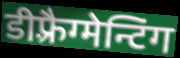
डीफ़्रैग्मेन्टिंग